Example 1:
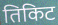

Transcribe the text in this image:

तिकिट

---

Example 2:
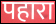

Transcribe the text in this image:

पहारा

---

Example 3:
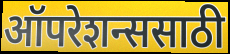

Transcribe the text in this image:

ऑपरेशन्ससाठी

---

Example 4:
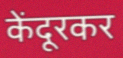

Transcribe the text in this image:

केंदूरकर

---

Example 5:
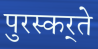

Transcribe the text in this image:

पुरस्कर्ते